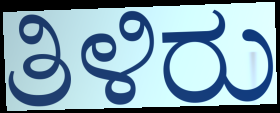
ತಿಳಿರು